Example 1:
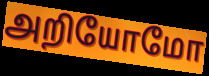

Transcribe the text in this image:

அறியோமோ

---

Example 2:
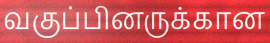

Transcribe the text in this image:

வகுப்பினருக்கான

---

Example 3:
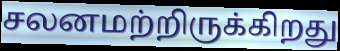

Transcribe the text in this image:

சலனமற்றிருக்கிறது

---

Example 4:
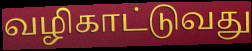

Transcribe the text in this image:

வழிகாட்டுவது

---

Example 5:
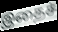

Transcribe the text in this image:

இதைச்